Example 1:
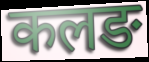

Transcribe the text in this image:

कलङ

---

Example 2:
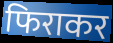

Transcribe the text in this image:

फिराकर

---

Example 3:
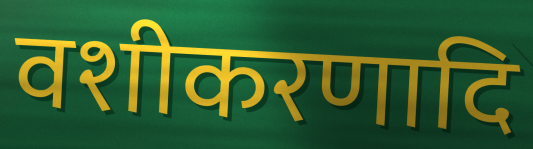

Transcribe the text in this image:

वशीकरणादि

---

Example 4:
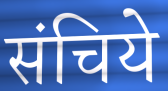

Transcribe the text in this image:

संचिये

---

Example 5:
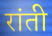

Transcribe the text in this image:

रांती